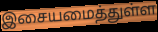
இசையமைத்துள்ள